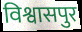
विश्वासपुर